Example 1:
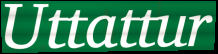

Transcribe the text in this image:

Uttattur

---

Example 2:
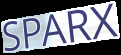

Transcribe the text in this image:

SPARX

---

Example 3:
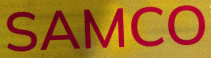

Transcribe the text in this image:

SAMCO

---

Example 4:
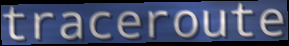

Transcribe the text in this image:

traceroute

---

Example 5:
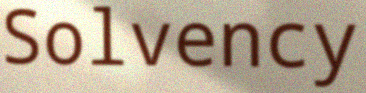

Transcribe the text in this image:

Solvency